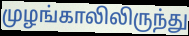
முழங்காலிலிருந்து